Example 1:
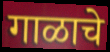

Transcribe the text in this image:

गाळाचे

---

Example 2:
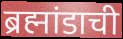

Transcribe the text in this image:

ब्रह्मांडाची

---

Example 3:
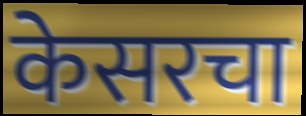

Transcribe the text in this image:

केसरचा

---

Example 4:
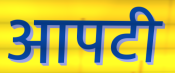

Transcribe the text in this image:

आपटी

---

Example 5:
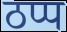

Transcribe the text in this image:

ठप्प